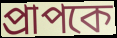
প্রাপকে